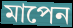
মাপেন